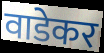
वाडेकर